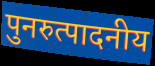
पुनरुत्पादनीय